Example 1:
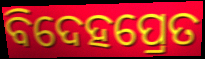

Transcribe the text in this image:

ବିଦେହପ୍ରେତ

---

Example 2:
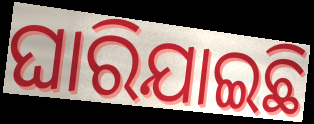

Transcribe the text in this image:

ଘାରିଯାଇଛି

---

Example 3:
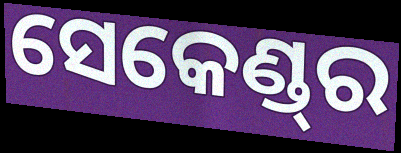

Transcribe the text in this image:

ସେକେଣ୍ଡ୍‌ର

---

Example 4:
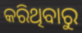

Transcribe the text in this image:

କରିଥିବାରୁ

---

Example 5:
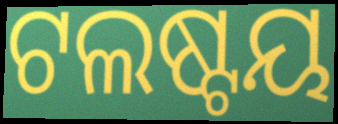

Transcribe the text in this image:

ଟଲଷ୍ଟୟ